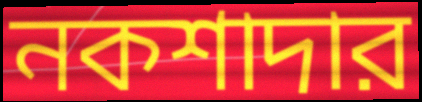
নকশাদার